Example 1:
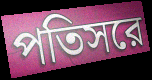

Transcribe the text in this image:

পতিসরে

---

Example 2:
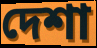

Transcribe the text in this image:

দেশা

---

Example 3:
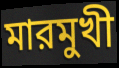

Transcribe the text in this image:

মারমুখী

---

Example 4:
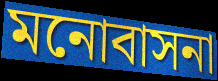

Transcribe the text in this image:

মনোবাসনা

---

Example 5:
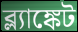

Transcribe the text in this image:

ব্ল্যাঙ্কেট